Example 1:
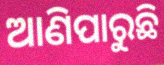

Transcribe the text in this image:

ଆଣିପାରୁଛି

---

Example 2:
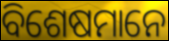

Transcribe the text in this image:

ବିଶେଷମାନେ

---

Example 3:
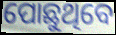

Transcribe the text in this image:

ପୋଛୁଥିବେ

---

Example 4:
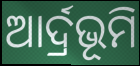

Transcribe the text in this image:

ଆର୍ଦ୍ରଭୂମି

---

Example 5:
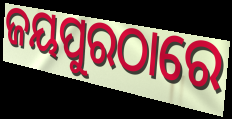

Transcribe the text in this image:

ଜୟପୁରଠାରେ